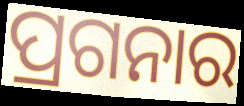
ପ୍ରଗନାର